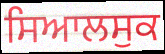
ਸਿਆਲਸੁਕ